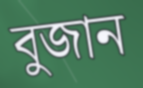
বুজান